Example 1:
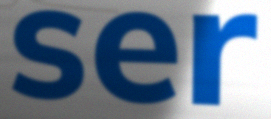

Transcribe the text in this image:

ser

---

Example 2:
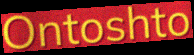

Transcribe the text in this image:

Ontoshto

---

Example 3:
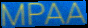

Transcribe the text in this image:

MPAA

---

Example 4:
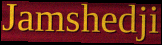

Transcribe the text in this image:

Jamshedji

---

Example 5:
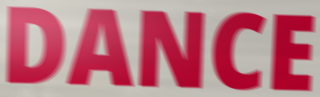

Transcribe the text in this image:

DANCE